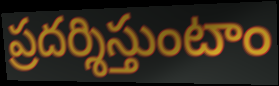
ప్రదర్శిస్తుంటాం